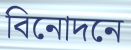
বিনোদনে